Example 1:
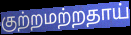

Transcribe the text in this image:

குற்றமற்றதாய்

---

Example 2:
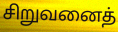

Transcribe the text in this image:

சிறுவனைத்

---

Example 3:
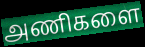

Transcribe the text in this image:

அணிகளை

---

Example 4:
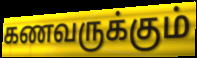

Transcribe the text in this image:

கணவருக்கும்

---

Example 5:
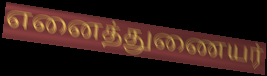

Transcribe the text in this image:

எனைத்துணையர்